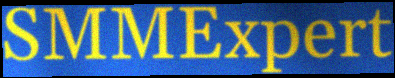
SMMExpert